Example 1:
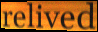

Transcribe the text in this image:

relived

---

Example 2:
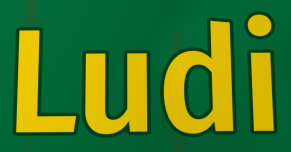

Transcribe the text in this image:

Ludi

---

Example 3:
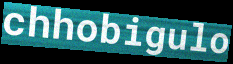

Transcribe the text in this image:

chhobigulo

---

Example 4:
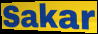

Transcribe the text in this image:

Sakar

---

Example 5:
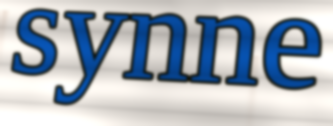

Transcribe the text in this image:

synne